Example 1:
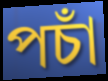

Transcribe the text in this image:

পচাঁ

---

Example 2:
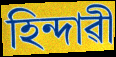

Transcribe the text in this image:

হিন্দাৱী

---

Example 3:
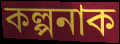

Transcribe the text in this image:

কল্পনাক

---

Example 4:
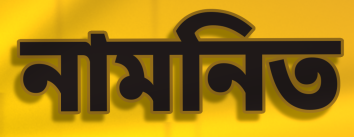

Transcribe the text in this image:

নামনিত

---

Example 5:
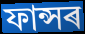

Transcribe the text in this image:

ফান্সৰ